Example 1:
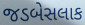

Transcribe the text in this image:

જડબેસલાક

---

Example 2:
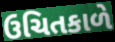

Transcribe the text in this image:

ઉચિતકાળે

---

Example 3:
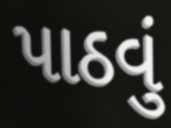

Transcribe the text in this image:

પાઠવું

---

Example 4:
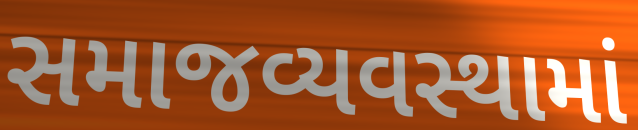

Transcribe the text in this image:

સમાજવ્યવસ્થામાં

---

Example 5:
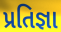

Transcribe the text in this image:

પ્રતિજ્ઞા